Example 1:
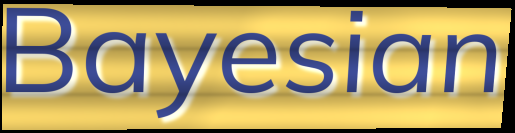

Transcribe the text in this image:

Bayesian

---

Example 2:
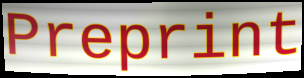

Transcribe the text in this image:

Preprint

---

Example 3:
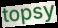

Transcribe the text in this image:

topsy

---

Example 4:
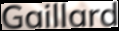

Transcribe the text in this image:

Gaillard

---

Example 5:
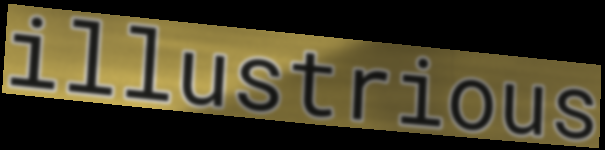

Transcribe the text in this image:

illustrious